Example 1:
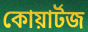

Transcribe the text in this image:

কোয়ার্টজ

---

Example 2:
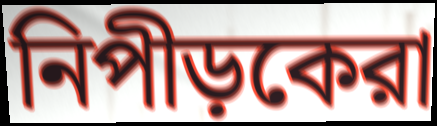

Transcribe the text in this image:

নিপীড়কেরা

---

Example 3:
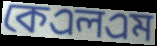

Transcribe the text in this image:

কেএলএম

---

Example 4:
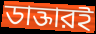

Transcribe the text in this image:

ডাক্তারই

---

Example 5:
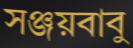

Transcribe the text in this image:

সঞ্জয়বাবু